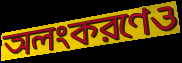
অলংকরণেও